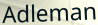
Adleman